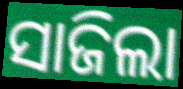
ସାଜିଲା